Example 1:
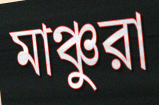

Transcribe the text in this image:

মাঞ্চুরা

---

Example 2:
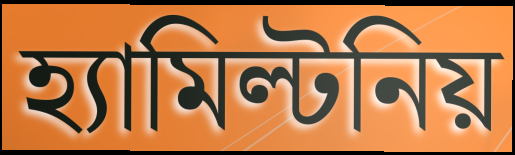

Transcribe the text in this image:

হ্যামিল্টনিয়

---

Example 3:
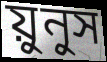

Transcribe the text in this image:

য়ুনুস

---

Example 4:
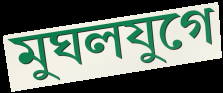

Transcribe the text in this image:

মুঘলযুগে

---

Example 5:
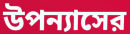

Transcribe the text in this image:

উপন্যাসের